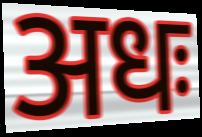
अधः